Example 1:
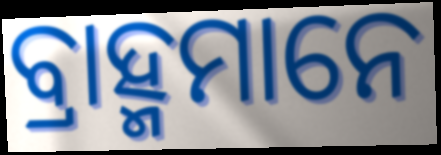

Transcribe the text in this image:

ବ୍ରାହ୍ମମାନେ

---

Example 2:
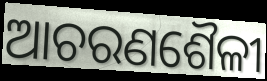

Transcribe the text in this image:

ଆଚରଣଶୈଳୀ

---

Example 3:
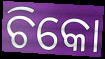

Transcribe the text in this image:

ଚିକୋ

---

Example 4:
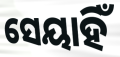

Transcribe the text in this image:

ସେୟାହିଁ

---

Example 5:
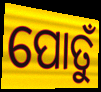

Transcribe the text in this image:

ପୋତୁଁ